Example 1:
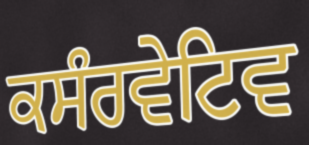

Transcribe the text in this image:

ਕਸੰਰਵੇਟਿਵ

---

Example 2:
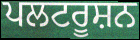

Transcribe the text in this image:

ਪਲਟਰੂਸ਼ਨ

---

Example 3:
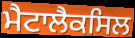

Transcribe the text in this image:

ਮੈਟਾਲੈਕਸਿਲ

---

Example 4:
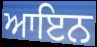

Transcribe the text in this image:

ਆਇਨ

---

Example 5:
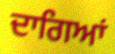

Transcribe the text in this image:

ਦਾਗਿਆਂ